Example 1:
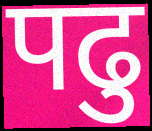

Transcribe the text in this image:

पढु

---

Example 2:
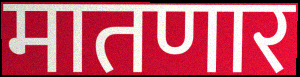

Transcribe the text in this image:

मातणार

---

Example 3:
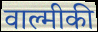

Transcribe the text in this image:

वाल्मीकी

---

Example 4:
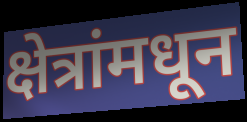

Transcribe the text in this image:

क्षेत्रांमधून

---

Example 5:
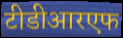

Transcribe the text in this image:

टीडीआरएफ